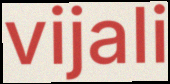
vijali